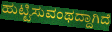
ಹುಟ್ಟಿಸುವಂಥದ್ದಾಗಿದೆ